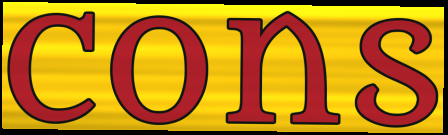
cons